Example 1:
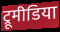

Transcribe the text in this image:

ट्रूमीडिया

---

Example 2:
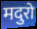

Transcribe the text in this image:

मदुरो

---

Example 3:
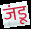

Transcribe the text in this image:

जंडू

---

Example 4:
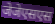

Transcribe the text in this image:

जेजेएसएस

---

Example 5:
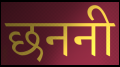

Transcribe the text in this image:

छननी